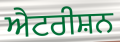
ਐਟਰੀਸ਼ਨ